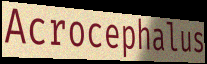
Acrocephalus